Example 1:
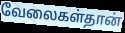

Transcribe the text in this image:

வேலைகள்தான்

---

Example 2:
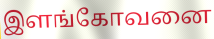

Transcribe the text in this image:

இளங்கோவனை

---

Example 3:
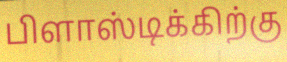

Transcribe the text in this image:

பிளாஸ்டிக்கிற்கு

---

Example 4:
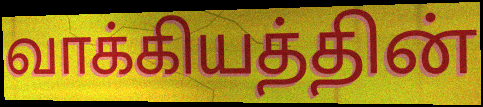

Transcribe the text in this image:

வாக்கியத்தின்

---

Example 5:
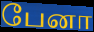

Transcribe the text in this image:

பேனா